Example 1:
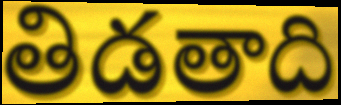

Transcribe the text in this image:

తిడతాది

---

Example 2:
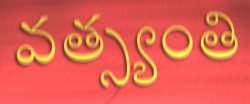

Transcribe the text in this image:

వత్స్యంతి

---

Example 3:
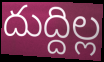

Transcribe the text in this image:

దుద్దిల్ల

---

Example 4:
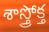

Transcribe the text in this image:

శాస్త్రోక్త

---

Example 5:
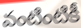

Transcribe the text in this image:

వంటింటికీ